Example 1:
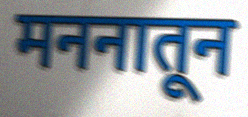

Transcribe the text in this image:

मननातून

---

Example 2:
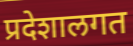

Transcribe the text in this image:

प्रदेशालगत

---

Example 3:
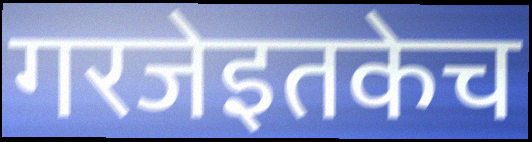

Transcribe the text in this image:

गरजेइतकेच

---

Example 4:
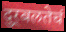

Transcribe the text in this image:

दुर्बलतेचं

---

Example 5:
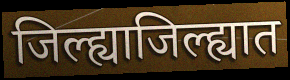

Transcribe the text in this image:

जिल्ह्याजिल्ह्यात